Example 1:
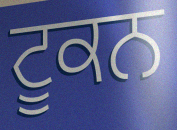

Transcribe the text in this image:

ਟੂਕਨ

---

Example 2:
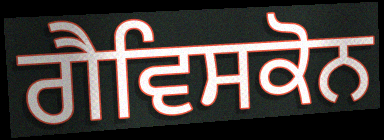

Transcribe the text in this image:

ਗੈਵਿਸਕੋਨ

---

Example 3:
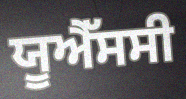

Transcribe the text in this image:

ਯੂਐੱਸਸੀ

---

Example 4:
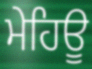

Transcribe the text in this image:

ਮੇਹਿਊ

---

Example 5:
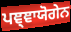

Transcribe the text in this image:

ਪਞ੍ਞਾਯੋਗੇਨ